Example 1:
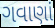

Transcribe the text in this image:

ગવાણાં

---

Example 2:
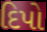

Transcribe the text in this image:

દિપો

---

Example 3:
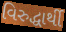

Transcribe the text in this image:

વિરુદ્ધાર્થી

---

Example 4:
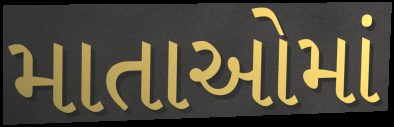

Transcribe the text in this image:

માતાઓમાં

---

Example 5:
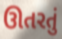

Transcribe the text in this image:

ઊતરતું